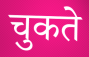
चुकते